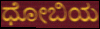
ಧೋಬಿಯ